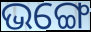
ଭଙ୍ଗେ